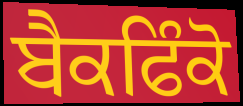
ਬੈਕਫਿੰਕੋ